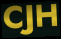
CJH